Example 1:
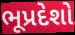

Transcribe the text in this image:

ભૂપ્રદેશો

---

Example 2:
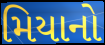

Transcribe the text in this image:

મિયાનો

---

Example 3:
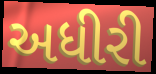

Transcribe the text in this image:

અધીરી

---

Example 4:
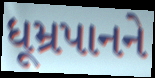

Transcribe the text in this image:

ધૂમ્રપાનને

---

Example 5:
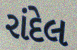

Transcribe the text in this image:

રાંદેલ